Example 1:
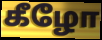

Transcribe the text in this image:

கீழோ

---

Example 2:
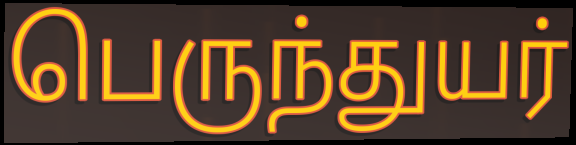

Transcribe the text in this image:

பெருந்துயர்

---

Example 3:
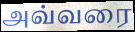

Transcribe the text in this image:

அவ்வரை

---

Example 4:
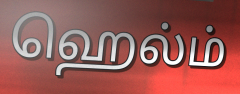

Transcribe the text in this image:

ஹெல்ம்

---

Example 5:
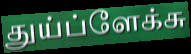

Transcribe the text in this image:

துய்ப்ளேக்சு